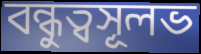
বন্ধুত্বসূলভ